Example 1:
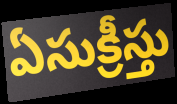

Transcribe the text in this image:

ఏసుక్రీస్తు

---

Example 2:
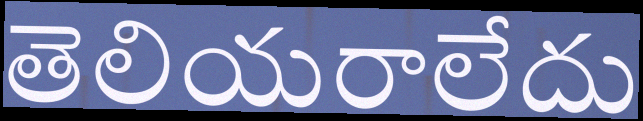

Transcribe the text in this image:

తెలియరాలేదు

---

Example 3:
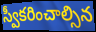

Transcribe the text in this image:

స్వీకరించాల్సిన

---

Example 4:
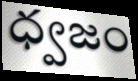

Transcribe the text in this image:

ధ్వజం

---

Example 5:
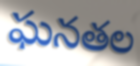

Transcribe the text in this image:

ఘనతల